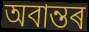
অবান্তৰ